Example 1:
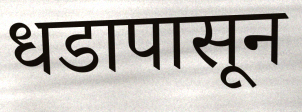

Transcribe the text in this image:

धडापासून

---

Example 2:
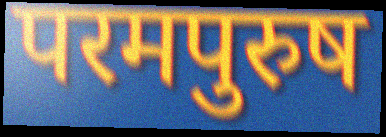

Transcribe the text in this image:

परमपुरुष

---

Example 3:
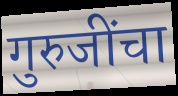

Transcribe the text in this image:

गुरुजींचा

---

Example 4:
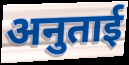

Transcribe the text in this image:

अनुताई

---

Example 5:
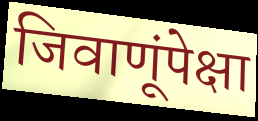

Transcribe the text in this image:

जिवाणूंपेक्षा